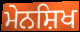
ਮੇਨਸ਼ਿਖ